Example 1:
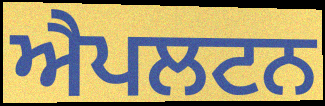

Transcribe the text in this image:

ਐਪਲਟਨ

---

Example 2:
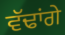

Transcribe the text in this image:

ਵੱਢਾਂਗੇ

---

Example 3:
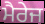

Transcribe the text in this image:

ਮੈਰੇਜ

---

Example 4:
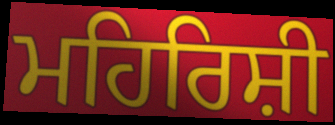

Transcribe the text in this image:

ਮਹਿਰਿਸ਼ੀ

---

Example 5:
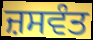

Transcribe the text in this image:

ਜ਼ਸਵੰਤ